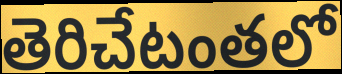
తెరిచేటంతలో